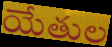
యేతుల